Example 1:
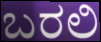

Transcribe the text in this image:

ಬರಲಿ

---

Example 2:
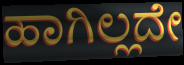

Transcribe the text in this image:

ಹಾಗಿಲ್ಲದೇ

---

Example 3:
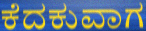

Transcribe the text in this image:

ಕೆದಕುವಾಗ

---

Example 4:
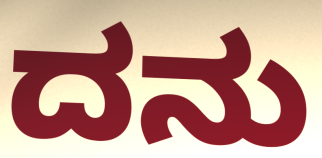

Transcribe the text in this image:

ದನು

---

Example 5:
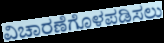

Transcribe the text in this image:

ವಿಚಾರಣೆಗೊಳಪಡಿಸಲು